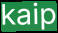
kaip